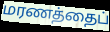
மரணத்தைப்